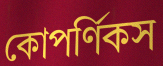
কোপর্ণিকস